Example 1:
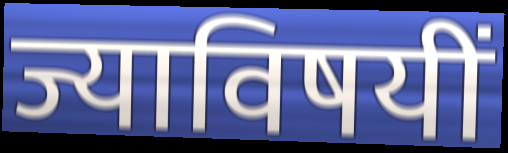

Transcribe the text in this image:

ज्याविषयीं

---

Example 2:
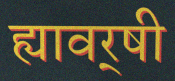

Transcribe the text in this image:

ह्यावर्षी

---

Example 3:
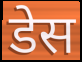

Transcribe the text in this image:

डेस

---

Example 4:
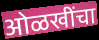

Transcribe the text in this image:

ओळखींचा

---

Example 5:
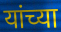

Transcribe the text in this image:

यांच्‍या